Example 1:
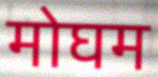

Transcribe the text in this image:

मोघम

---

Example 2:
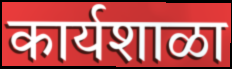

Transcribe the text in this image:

कार्यशाळा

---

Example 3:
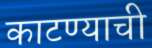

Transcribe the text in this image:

काटण्याची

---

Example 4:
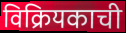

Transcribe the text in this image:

विक्रियकाची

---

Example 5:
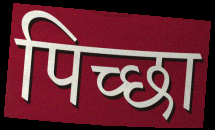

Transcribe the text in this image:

पिच्छा